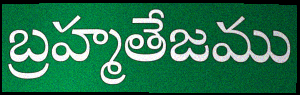
బ్రహ్మతేజము